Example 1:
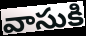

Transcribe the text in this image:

వాసుకి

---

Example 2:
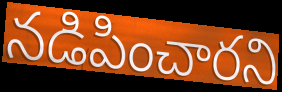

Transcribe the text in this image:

నడిపించారని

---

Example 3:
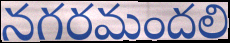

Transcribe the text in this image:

నగరమందలి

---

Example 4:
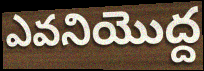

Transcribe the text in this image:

ఎవనియొద్ద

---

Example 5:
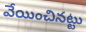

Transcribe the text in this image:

వేయించినట్టు